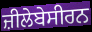
ਜ਼ੀਲੇਬੇਸੀਰਨ